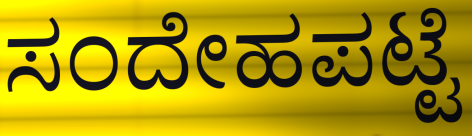
ಸಂದೇಹಪಟ್ಟೆ